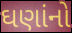
ઘણાંનો